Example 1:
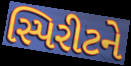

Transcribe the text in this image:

સ્પિરીટને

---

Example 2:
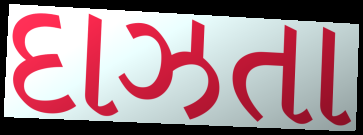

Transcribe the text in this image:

દાઝતા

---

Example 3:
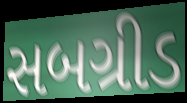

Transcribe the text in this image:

સબગ્રીડ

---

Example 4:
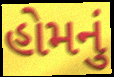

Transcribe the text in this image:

હોમનું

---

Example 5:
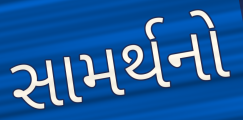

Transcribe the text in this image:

સામર્થનો